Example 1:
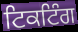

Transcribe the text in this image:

ਟਿਕਟਿੰਗ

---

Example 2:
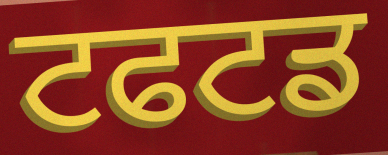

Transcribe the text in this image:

ਟਫਟਡ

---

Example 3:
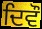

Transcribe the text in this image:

ਦਿਵੌ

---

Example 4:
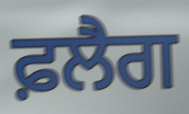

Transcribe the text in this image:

ਫ਼ਲੈਗ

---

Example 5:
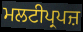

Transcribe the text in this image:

ਮਲਟੀਪ੍ਰਪਜ਼